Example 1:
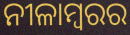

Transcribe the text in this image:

ନୀଳାମ୍ବରର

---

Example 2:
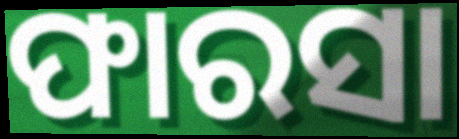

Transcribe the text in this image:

ଫାରସା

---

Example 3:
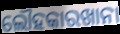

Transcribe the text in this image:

ଲୌହକାରଖାନା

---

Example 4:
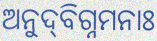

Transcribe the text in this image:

ଅନୁଦ୍‌ବିଗ୍ନମନାଃ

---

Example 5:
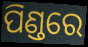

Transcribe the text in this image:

ପିଣ୍ଡରେ